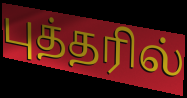
புத்தரில்